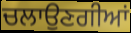
ਚਲਾਉਣਗੀਆਂ